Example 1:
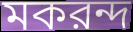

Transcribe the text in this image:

মকরন্দ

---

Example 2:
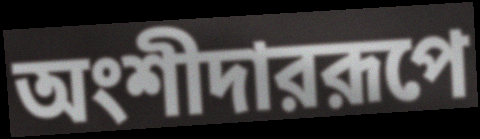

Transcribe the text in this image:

অংশীদাররূপে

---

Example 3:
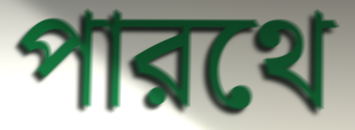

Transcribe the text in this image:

পারথে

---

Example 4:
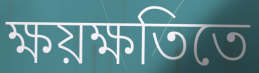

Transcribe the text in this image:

ক্ষয়ক্ষতিতে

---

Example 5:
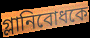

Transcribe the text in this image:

গ্লানিবোধকে